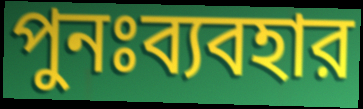
পুনঃব্যবহার